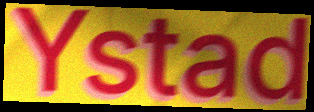
Ystad